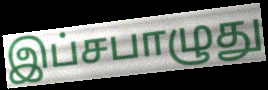
இப்சபாழுது